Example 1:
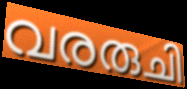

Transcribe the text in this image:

വരരുചി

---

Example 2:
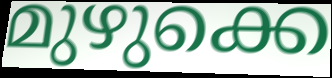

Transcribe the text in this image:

മുഴുക്കെ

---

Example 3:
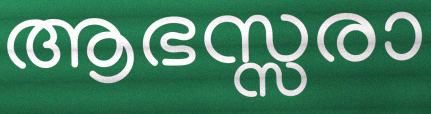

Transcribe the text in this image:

ആഭസ്സരാ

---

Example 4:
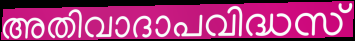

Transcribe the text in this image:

അതിവാദാപവിദ്ധസ്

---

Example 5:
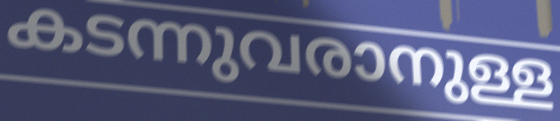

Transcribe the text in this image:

കടന്നുവരാനുള്ള